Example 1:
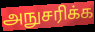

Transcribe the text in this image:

அநுசரிக்க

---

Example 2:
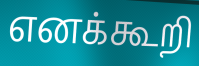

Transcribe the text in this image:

எனக்கூறி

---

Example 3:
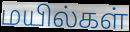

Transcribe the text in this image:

மயில்கள்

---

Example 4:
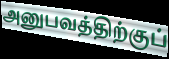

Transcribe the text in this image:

அனுபவத்திற்குப்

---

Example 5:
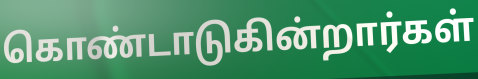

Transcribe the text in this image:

கொண்டாடுகின்றார்கள்